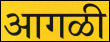
आगळी